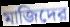
মাজিদের